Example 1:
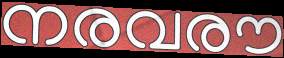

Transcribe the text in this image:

നരവരൗ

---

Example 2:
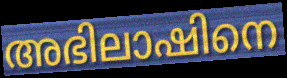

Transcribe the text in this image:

അഭിലാഷിനെ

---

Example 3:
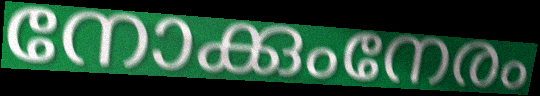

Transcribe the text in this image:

നോക്കുംനേരം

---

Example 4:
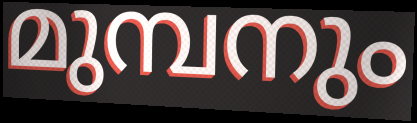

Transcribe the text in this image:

മുമ്പനും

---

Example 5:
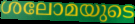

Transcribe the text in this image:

ശലോമയുടെ